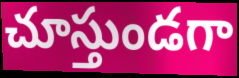
చూస్తుండగా